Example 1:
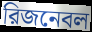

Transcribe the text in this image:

রিজনেবল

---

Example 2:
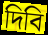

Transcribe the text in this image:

দিবি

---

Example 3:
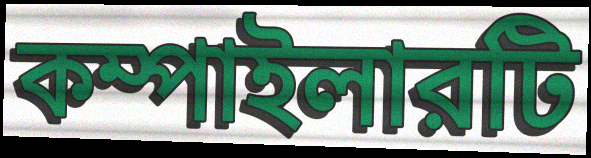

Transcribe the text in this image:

কম্পাইলারটি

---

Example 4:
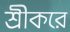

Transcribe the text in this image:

শ্রীকরে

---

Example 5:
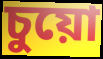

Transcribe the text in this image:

চুয়ো